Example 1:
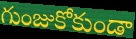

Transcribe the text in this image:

గుంజుకోకుండా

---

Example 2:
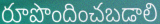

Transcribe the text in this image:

రూపొందించబడాలి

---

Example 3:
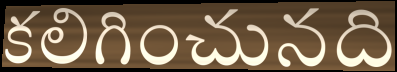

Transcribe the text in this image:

కలిగించునది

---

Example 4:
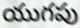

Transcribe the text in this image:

యుగపు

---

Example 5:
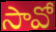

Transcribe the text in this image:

సావో